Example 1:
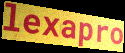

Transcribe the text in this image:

lexapro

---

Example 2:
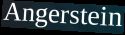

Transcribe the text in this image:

Angerstein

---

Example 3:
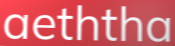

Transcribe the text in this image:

aeththa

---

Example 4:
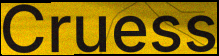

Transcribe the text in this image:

Cruess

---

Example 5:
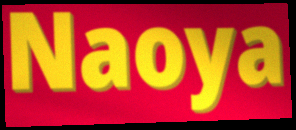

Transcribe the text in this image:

Naoya